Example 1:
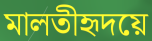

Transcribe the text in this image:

মালতীহৃদয়ে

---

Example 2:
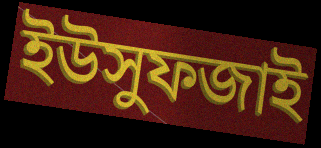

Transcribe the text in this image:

ইউসুফজাই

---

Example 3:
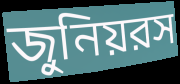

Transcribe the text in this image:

জুনিয়রস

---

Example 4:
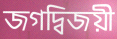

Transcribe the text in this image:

জগদ্বিজয়ী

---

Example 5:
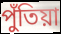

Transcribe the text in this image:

পুঁতিয়া